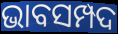
ଭାବସମ୍ପଦ